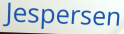
Jespersen